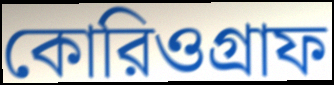
কোরিওগ্রাফ